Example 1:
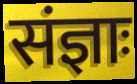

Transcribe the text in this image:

संज्ञाः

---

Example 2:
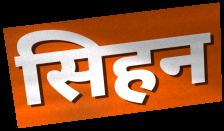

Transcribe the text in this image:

सिहन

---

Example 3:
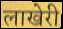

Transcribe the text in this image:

लाखेरी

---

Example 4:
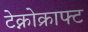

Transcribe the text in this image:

टेक्नोक्राफ्ट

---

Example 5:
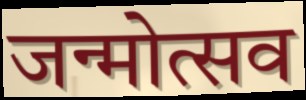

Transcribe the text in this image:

जन्मोत्सव